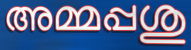
അമ്മപ്പശു